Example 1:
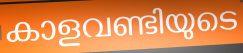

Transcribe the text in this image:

കാളവണ്ടിയുടെ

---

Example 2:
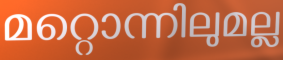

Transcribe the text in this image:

മറ്റൊന്നിലുമല്ല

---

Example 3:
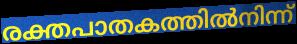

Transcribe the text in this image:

രക്തപാതകത്തിൽനിന്ന്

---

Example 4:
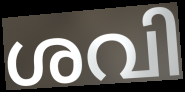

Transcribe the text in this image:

ശവി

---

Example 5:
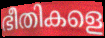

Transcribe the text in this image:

ഭീതികളെ